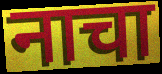
नाचा